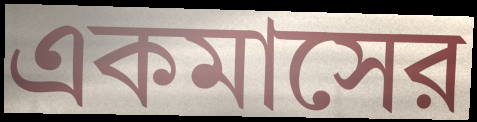
একমাসের